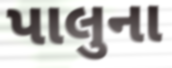
પાલુના